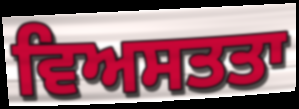
ਵਿਅਸਤਤਾ